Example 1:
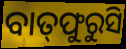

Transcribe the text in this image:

ବାତ୍‌ଫୁରୁସି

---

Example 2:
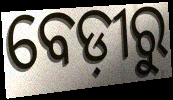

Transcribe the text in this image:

ବେଡ଼ୀରୁ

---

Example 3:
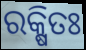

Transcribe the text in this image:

ରକ୍ଷିତଃ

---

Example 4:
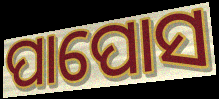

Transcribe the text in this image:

ପାପୋସ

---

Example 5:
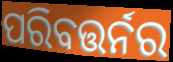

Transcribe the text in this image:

ପରିବତ୍ତର୍ନର